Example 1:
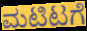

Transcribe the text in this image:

ಮಟಿಟಗೆ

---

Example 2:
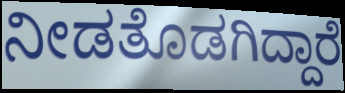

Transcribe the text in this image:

ನೀಡತೊಡಗಿದ್ದಾರೆ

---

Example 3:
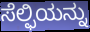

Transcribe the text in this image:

ಸೆಲ್ಫಿಯನ್ನು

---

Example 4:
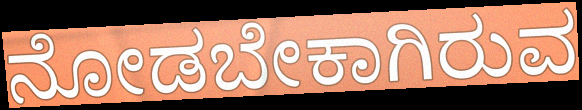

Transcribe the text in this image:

ನೋಡಬೇಕಾಗಿರುವ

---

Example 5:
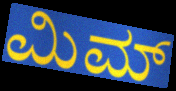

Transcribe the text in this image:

ಮಿಮ್